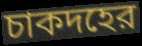
চাকদহের